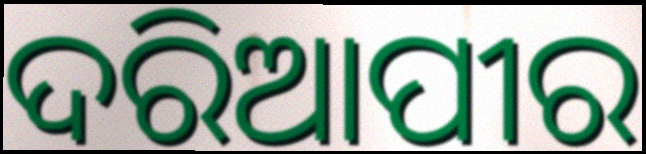
ଦରିଆପୀର